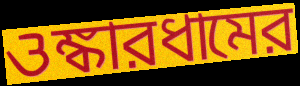
ওঙ্কারধামের